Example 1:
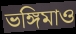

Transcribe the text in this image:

ভঙ্গিমাও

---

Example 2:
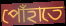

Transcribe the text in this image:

পোঁহাতে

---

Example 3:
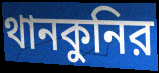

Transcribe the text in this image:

থানকুনির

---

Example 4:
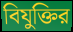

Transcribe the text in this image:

বিযুক্তির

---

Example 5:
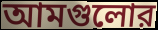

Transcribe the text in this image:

আমগুলোর